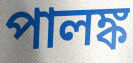
পালঙ্ক